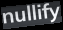
nullify